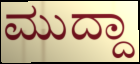
ಮುದ್ದಾ